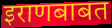
इराणबाबत